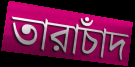
তারাচাঁদ